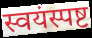
स्वयंस्पष्ट